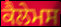
ਕੈਲੇਮਸ